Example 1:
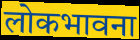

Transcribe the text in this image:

लोकभावना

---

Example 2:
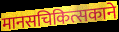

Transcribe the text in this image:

मानसचिकित्सकाने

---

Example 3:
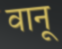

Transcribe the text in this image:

वानू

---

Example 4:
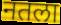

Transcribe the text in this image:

नतला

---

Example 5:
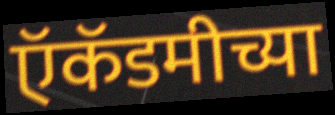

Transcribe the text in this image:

ऍकॅडमीच्या